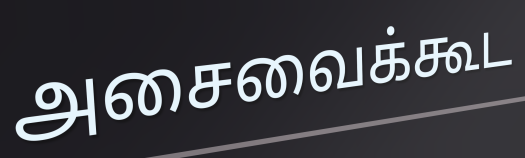
அசைவைக்கூட